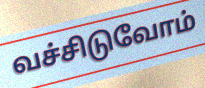
வச்சிடுவோம்